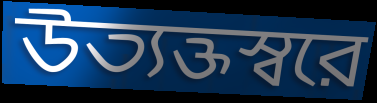
উত্যক্তস্বরে